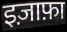
इज़ाफ़ा